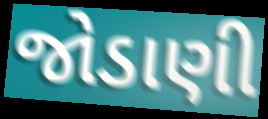
જોડાણી